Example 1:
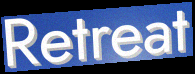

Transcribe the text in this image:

Retreat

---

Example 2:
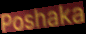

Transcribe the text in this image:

Poshaka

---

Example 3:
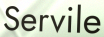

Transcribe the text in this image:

Servile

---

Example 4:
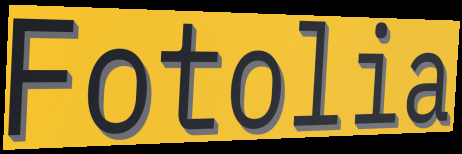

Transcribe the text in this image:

Fotolia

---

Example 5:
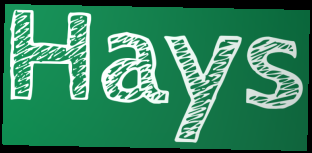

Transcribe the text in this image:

Hays